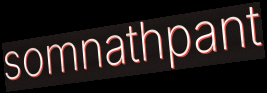
somnathpant